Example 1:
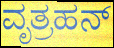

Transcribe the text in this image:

ವೃತ್ರಹನ್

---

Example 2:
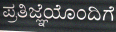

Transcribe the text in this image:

ಪ್ರತಿಜ್ಞೆಯೊಂದಿಗೆ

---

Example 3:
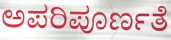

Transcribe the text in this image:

ಅಪರಿಪೂರ್ಣತೆ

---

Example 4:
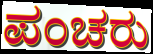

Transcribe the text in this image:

ಪಂಚರು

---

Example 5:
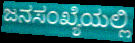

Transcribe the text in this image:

ಜನಸಂಖ್ಯೆಯಲ್ಲಿ